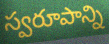
స్వరూపాన్ని